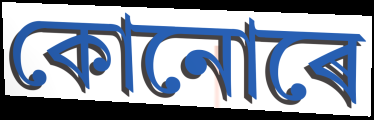
কোনোৰে